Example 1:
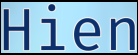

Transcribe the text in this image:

Hien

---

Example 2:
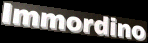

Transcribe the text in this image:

Immordino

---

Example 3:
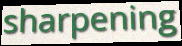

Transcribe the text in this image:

sharpening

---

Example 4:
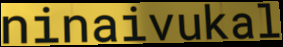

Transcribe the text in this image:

ninaivukal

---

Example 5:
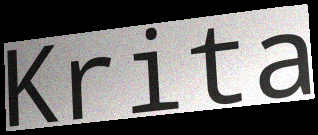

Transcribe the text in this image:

Krita